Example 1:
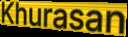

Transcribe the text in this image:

Khurasan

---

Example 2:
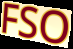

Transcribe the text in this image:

FSO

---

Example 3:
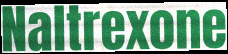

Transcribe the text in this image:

Naltrexone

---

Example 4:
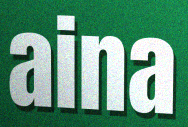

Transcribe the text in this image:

aina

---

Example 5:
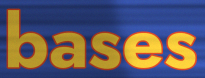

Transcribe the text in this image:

bases